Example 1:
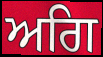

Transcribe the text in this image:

ਅਗਿ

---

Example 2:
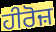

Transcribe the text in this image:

ਹੀਰੋਜ਼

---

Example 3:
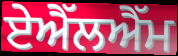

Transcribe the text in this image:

ਏਐੱਲਐੱਮ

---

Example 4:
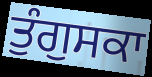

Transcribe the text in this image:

ਤੁੰਗੁਸਕਾ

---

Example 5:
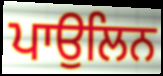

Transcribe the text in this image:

ਪਾਉਲਿਨ